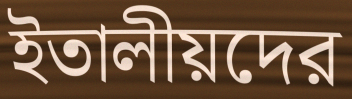
ইতালীয়দের